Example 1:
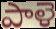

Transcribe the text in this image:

పాళె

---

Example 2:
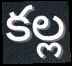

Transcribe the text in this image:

కల్ల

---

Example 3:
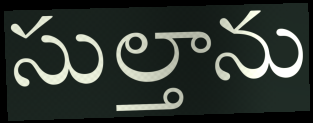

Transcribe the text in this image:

సుల్తాను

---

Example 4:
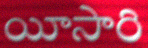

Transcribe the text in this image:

యీసారి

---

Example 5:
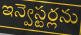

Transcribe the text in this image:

ఇన్వెస్టర్లను